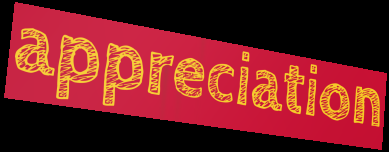
appreciation